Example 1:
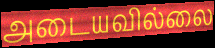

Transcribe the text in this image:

அடையவில்லை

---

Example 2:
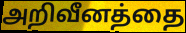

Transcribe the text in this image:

அறிவீனத்தை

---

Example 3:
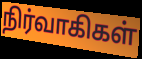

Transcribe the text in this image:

நிர்வாகிகள்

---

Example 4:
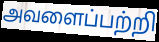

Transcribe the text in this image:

அவளைப்பற்றி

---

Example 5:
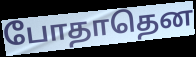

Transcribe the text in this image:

போதாதென